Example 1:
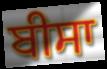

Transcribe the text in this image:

ਬੀਸਾ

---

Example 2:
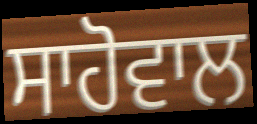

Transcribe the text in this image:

ਸਾਹੋਵਾਲ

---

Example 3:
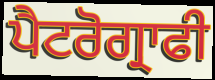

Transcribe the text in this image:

ਪੈਟਰੋਗ੍ਰਾਫੀ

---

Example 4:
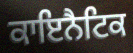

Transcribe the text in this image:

ਕਾਇਨੈਟਿਕ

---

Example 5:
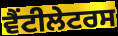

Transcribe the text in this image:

ਵੈਂਟੀਲੇਟਰਸ